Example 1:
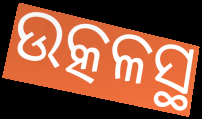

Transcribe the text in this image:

ଉତ୍କଳସ୍ଥ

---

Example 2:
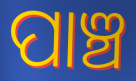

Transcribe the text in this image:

ପାଞ୍ଚ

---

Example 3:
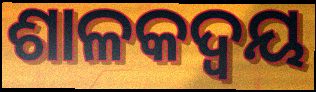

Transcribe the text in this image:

ଶାଳକଦ୍ୱୟ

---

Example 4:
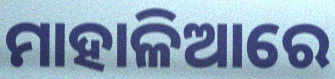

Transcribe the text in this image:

ମାହାଳିଆରେ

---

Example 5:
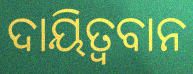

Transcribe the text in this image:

ଦାୟିତ୍ଵବାନ